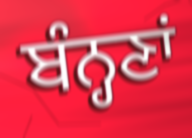
ਬੰਨ੍ਹਣਾਂ